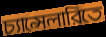
চ্যান্সেলারিতে